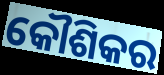
କୌଶିକର